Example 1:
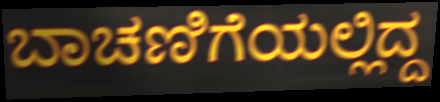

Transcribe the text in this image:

ಬಾಚಣಿಗೆಯಲ್ಲಿದ್ದ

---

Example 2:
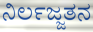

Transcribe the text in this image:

ನಿರ್ಲಜ್ಜತನ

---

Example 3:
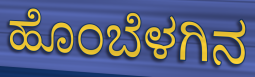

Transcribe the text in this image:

ಹೊಂಬೆಳಗಿನ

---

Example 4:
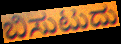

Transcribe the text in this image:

ಬಿಸುಟುದು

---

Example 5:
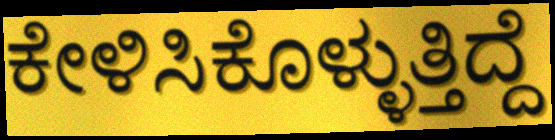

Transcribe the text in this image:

ಕೇಳಿಸಿಕೊಳ್ಳುತ್ತಿದ್ದೆ